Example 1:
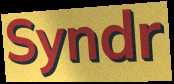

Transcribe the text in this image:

Syndr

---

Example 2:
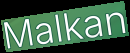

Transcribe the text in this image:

Malkan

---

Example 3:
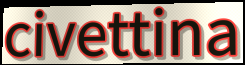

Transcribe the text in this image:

civettina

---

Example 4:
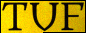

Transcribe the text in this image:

TUF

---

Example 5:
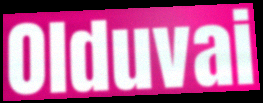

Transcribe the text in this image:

Olduvai